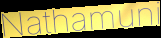
Nathamuni